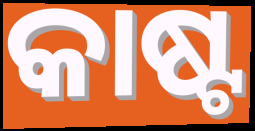
କାଷ୍ଟ